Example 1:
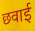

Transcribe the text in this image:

छवाई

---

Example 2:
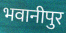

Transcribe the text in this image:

भवानीपुर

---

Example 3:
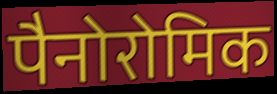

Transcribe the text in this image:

पैनोरोमिक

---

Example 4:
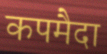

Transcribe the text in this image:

कपमैदा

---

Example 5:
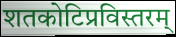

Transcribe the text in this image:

शतकोटिप्रविस्तरम्